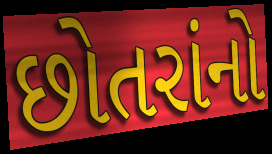
છોતરાંનો